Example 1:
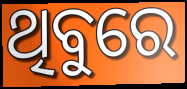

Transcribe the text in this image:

ଥିବୁରେ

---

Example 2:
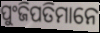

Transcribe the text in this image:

ପୁଂଜିପତିମାନେ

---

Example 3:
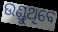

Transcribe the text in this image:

ଉଣ୍ଡୁଥିବେ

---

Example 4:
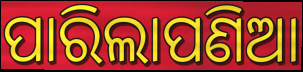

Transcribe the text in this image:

ପାରିଲାପଣିଆ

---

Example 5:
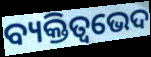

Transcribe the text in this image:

ବ୍ୟକ୍ତିତ୍ୱଭେଦ